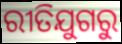
ରୀତିଯୁଗରୁ